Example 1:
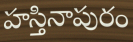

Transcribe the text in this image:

హస్తినాపురం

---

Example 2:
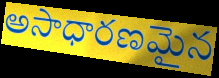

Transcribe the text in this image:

అసాధారణమైన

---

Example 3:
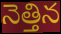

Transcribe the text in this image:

నెత్తిన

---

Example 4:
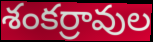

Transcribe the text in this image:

శంకర్రావుల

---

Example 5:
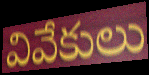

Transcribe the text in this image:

వివేకులు